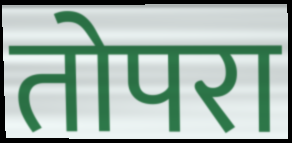
तोपरा